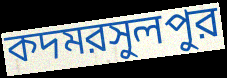
কদমরসুলপুর